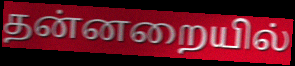
தன்னறையில்